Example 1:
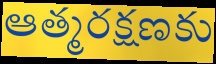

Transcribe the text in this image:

ఆత్మరక్షణకు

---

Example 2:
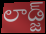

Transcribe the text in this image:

లాడ్జ్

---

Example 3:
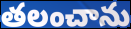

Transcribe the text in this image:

తలంచాను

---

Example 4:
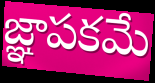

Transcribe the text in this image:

జ్ఞాపకమే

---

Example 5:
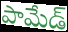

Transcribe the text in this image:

పామేడ్